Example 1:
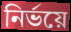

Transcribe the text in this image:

নির্ভয়ে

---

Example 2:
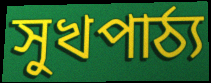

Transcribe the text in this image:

সুখপাঠ্য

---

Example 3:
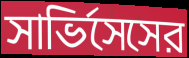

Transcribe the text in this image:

সার্ভিসেসের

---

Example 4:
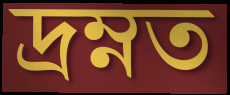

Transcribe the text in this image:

দ্রম্নত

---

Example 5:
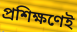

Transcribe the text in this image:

প্রশিক্ষণেই